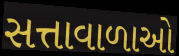
સત્તાવાળાઓ